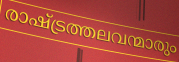
രാഷ്ട്രത്തലവന്മാരും